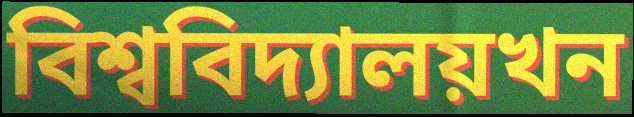
বিশ্ববিদ্যালয়খন